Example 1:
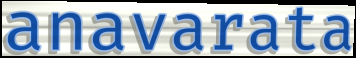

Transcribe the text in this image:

anavarata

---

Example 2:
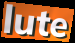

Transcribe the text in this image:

lute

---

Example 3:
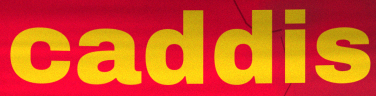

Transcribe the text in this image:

caddis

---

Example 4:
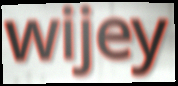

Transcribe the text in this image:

wijey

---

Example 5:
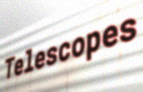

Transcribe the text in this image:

Telescopes